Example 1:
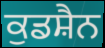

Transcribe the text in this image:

ਕੁਡਸ਼ੈਨ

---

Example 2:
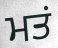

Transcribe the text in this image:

ਮਤਂ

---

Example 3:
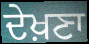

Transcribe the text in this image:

ਦੇਖ਼ਣਾ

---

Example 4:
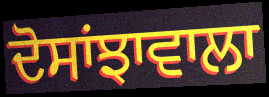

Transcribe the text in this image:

ਦੋਸਾਂਝਾਵਾਲਾ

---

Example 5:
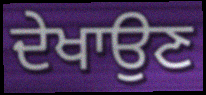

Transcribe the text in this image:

ਦੇਖਾਉਣ